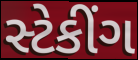
સ્ટેકીંગ